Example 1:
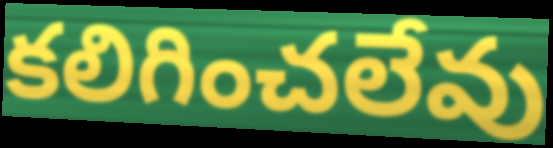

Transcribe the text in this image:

కలిగించలేవు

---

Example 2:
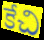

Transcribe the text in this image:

కేచి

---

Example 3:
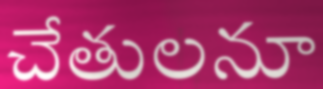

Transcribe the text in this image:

చేతులనూ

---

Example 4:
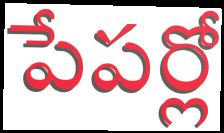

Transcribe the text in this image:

పేపర్లో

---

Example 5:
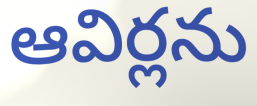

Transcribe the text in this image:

ఆవిర్లను